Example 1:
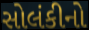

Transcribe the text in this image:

સોલંકીનો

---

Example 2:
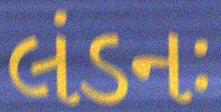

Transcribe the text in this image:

લંડનઃ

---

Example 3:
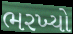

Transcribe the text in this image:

ભરખ્યો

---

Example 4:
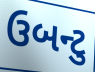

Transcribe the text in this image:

ઉબન્ટુ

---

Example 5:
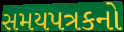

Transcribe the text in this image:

સમયપત્રકનો